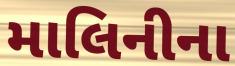
માલિનીના